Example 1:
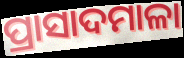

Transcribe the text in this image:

ପ୍ରାସାଦମାଳା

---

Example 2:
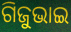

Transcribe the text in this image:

ଗିଜୁଭାଇ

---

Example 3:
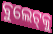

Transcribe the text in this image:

ବୁଲେଟ୍‌କୁ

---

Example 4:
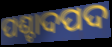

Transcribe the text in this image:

ପଶ୍ଚାଦପଦ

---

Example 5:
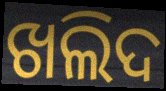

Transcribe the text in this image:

ଖଲିଦ